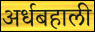
अर्धबहाली